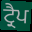
ਟ੍ਰੈਪ